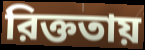
রিক্ততায়